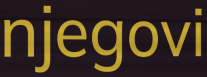
njegovi